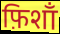
फ़िशाँ